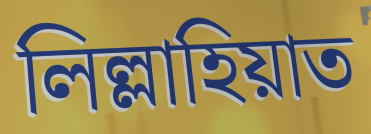
লিল্লাহিয়াত